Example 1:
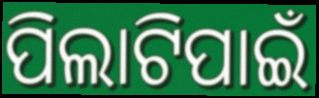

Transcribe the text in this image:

ପିଲାଟିପାଇଁ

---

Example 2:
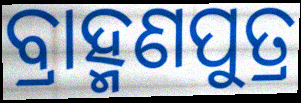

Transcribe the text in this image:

ବ୍ରାହ୍ମଣପୁତ୍ର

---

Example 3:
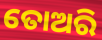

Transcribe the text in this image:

ତୋଅରି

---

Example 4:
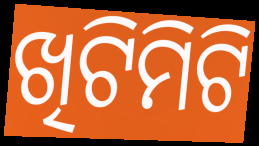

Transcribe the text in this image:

ଖିଟିମିଟି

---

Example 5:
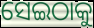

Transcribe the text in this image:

ସେଇଠାକୁ